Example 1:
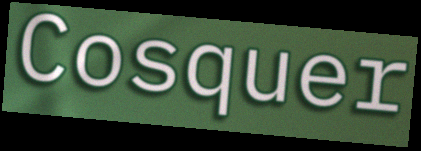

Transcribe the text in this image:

Cosquer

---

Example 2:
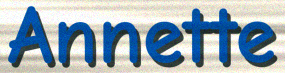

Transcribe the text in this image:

Annette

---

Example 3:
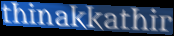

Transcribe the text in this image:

thinakkathir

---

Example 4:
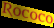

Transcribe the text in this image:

Rococo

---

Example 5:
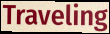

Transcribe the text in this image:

Traveling